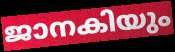
ജാനകിയും